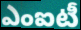
ఎంఐటీ